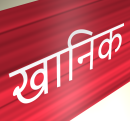
खानिक